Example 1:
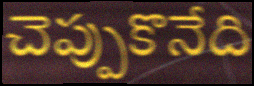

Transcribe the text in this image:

చెప్పుకొనేది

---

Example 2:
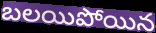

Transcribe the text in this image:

బలయిపోయిన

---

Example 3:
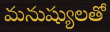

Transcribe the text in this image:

మనుష్యులతో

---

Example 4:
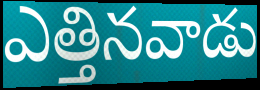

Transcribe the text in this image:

ఎత్తినవాడు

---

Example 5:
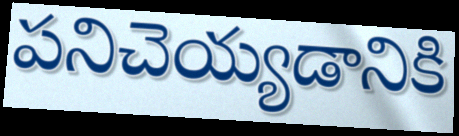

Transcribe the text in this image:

పనిచెయ్యడానికి